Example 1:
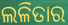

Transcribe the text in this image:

ଲଳିତାର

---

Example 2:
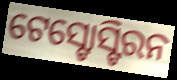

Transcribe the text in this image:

ଟେସ୍ଟୋସ୍ଟିରନ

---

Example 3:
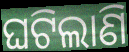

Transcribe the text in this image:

ଘଟିଲାଣି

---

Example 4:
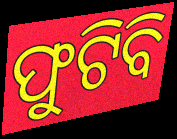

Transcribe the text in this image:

ଫୁଟିବି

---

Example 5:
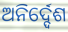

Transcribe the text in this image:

ଅନିର୍ଦ୍ଦେଶ